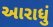
આરાધું